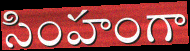
సింహంగా